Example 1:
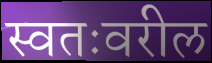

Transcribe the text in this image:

स्वतःवरील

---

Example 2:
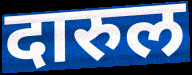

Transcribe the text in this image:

दारुल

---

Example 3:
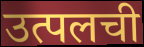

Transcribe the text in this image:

उत्पलची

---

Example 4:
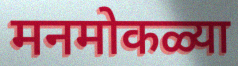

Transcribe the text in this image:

मनमोकळ्या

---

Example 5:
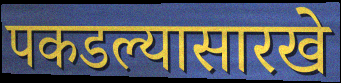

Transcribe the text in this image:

पकडल्यासारखे